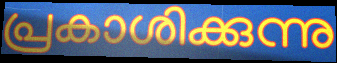
പ്രകാശിക്കുന്നു